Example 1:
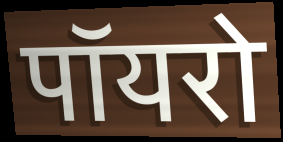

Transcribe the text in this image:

पॉयरो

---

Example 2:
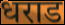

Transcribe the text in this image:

धराड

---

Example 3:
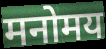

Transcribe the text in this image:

मनोमय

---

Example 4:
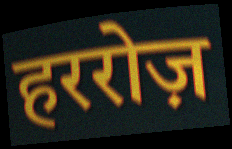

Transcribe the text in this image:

हररोज़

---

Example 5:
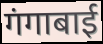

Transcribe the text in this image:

गंगाबाई